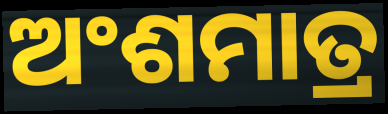
ଅଂଶମାତ୍ର